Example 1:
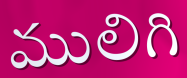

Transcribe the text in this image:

ములిగి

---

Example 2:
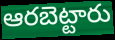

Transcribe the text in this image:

ఆరబెట్టారు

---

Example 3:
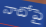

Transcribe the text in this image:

నాటోపై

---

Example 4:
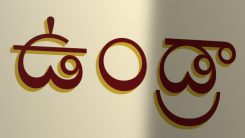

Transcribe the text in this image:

ఉండ్రా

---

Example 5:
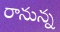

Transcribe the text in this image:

రానున్న